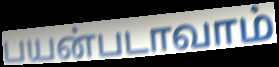
பயன்படாவாம்